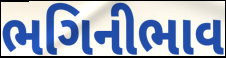
ભગિનીભાવ